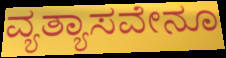
ವ್ಯತ್ಯಾಸವೇನೂ